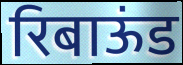
रिबाऊंड